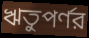
ঋতুপর্ণর